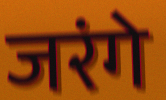
जरंगे